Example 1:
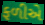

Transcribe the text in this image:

ફળીએ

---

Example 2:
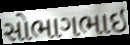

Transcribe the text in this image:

સોભાગભાઇ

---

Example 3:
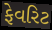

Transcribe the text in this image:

ફેવરિટ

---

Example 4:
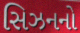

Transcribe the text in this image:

સિઝનનો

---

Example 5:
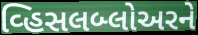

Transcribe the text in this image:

વ્હિસલબ્લોઅરને